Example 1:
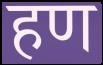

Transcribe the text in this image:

हण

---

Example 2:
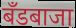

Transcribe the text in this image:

बँडबाजा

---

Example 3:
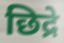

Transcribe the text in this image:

छिद्रे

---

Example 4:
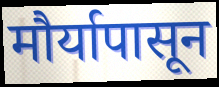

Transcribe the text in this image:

मौर्यापासून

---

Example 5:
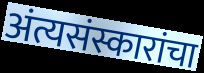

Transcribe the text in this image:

अंत्यसंस्कारांचा